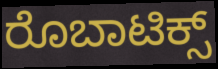
ರೊಬಾಟಿಕ್ಸ್